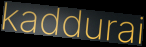
kaddurai